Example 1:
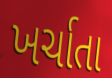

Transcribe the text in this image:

ખર્ચાતા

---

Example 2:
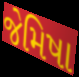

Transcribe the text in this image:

જેમિષા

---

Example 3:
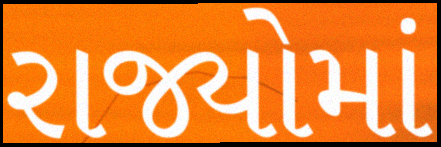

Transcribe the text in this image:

રાજ્યોમાં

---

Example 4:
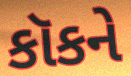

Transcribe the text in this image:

કૉકને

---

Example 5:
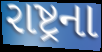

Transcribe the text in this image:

રાષ્ટ્રના